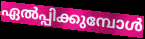
ഏൽപ്പിക്കുമ്പോൾ